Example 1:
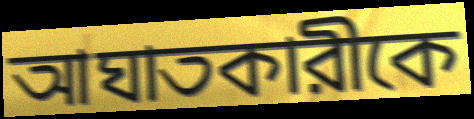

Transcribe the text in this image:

আঘাতকারীকে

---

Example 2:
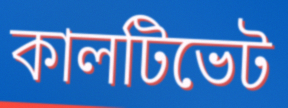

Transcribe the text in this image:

কালটিভেট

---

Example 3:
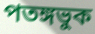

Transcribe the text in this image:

পতঙ্গভুক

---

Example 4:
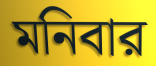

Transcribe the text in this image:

মনিবার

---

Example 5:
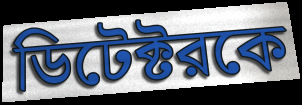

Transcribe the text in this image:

ডিটেক্টরকে